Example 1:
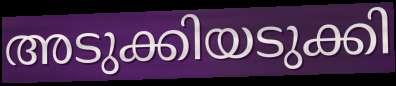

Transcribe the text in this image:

അടുക്കിയടുക്കി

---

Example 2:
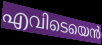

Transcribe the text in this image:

എവിടെയെൻ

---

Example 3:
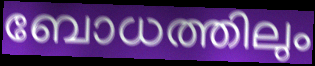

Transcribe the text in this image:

ബോധത്തിലും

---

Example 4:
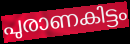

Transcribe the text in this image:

പുരാണകിട്ടം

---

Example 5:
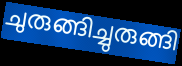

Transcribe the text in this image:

ചുരുങ്ങിച്ചുരുങ്ങി